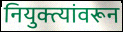
नियुक्त्यांवरून